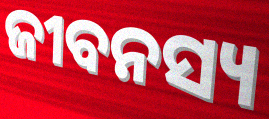
ଜୀବନସ୍ୟ